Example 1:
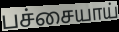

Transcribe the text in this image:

பச்சையாய்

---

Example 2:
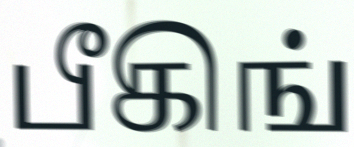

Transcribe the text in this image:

பீகிங்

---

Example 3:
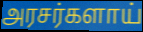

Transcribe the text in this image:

அரசர்களாய்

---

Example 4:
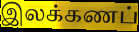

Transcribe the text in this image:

இலக்கணப்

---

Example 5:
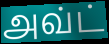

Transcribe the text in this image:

அவ்ட்